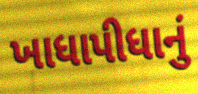
ખાધાપીધાનું